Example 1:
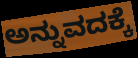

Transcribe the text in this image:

ಅನ್ನುವದಕ್ಕೆ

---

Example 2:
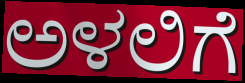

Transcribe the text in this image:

ಅಳಲಿಗೆ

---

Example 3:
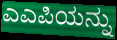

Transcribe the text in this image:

ಎಎಪಿಯನ್ನು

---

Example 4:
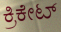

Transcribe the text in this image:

ಕ್ರಿಕೇಟ್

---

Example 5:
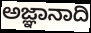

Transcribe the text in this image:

ಅಜ್ಞಾನಾದಿ